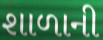
શાળાની